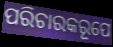
ପରିଚାରକରୂପେ